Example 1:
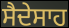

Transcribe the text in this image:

ਸੈਦੇਸਾਹ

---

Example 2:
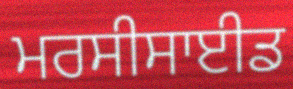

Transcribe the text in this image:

ਮਰਸੀਸਾਈਡ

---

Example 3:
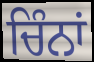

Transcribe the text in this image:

ਚਿੰਨਾਂ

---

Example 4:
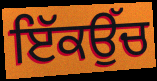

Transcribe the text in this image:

ਇੱਕਉੱਚ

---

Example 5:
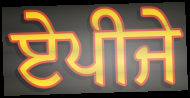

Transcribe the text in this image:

ਏਪੀਜੇ